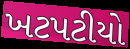
ખટપટીયો